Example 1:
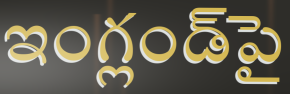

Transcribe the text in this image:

ఇంగ్లండ్‌పై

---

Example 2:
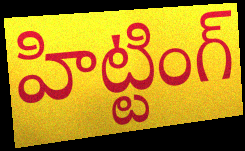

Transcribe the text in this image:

హిట్టింగ్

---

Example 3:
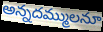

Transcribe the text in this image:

అన్నదమ్ములనూ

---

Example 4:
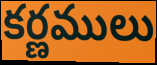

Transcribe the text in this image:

కర్ణములు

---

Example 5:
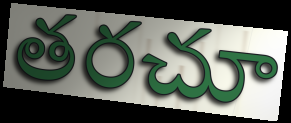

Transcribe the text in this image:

తరచూ